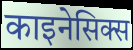
काइनेसिक्स